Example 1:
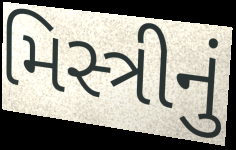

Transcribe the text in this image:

મિસ્ત્રીનું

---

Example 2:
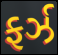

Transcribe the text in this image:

ફર્ઝ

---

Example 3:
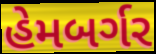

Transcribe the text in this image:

હેમબર્ગર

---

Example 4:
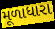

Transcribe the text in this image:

મૂળાધારા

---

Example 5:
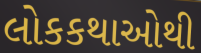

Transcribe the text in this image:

લોકકથાઓથી